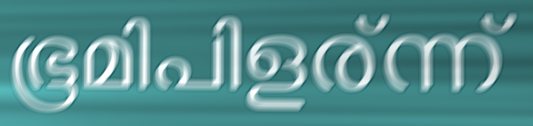
ഭൂമിപിളര്ന്ന്